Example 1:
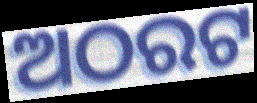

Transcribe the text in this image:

ଅଠରଟ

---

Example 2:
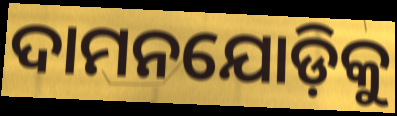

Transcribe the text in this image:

ଦାମନଯୋଡ଼ିକୁ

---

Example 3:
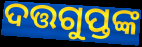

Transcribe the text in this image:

ଦତ୍ତଗୁପ୍ତଙ୍କ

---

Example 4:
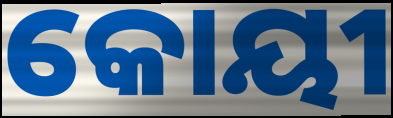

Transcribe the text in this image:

କୋୟୀ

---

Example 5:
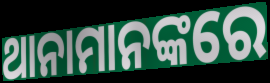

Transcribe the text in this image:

ଥାନାମାନଙ୍କରେ